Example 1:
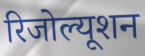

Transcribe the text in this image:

रिजोल्यूशन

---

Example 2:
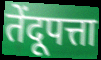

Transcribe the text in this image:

तेंदूपत्ता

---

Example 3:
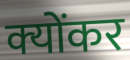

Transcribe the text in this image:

क्‍योंकर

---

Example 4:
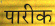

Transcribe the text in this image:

पारीक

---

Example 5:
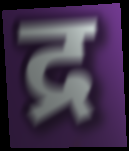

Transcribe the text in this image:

द्र